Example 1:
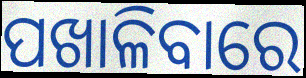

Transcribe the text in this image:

ପଖାଳିବାରେ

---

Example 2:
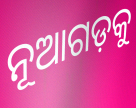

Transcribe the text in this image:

ନୂଆଗଡ଼କୁ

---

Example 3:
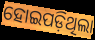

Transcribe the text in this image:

ହୋଇପଡ଼ିଥିଲା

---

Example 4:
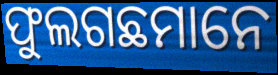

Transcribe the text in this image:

ଫୁଲଗଛମାନେ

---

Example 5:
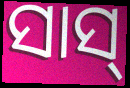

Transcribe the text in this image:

ସାସ୍